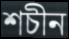
শচীন